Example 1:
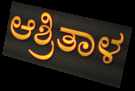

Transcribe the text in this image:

ಆಶ್ರಿತಾಳ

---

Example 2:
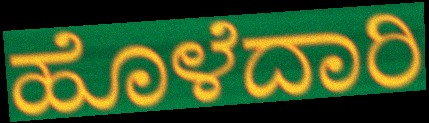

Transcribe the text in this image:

ಹೊಳೆದಾರಿ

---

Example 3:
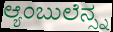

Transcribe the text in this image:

ಆ್ಯಂಬುಲೆನ್ಸ್ನ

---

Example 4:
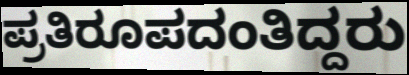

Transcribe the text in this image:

ಪ್ರತಿರೂಪದಂತಿದ್ದರು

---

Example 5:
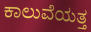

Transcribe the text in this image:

ಕಾಲುವೆಯತ್ತ